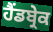
ਹੈਂਡਬ੍ਰੇਕ